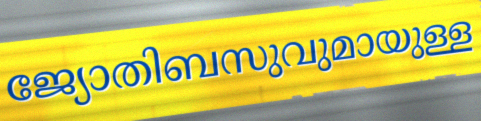
ജ്യോതിബസുവുമായുള്ള